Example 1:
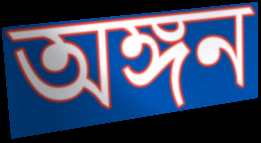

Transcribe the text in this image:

অঙ্গন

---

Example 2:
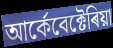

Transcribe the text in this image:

আৰ্কেবেক্টেৰিয়া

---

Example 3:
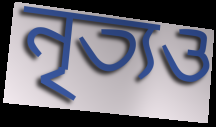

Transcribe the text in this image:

নৃত্যও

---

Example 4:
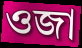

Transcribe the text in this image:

ওজা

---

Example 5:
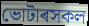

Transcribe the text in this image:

ভোটাৰসকল